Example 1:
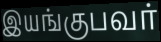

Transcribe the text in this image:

இயங்குபவர்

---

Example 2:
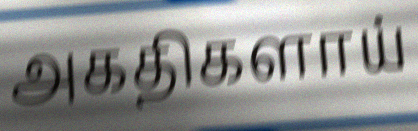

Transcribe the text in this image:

அகதிகளாய்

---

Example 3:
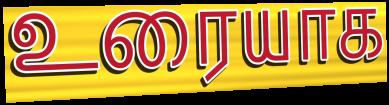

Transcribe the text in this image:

உரையாக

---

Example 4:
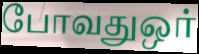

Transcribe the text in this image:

போவதுஒர்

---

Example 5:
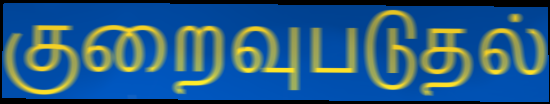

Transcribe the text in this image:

குறைவுபடுதல்